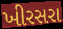
ખીરસરા